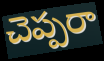
చెప్పరా